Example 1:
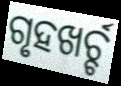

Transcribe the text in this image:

ଗୃହଖର୍ଚ୍ଚ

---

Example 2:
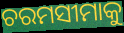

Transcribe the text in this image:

ଚରମସୀମାକୁ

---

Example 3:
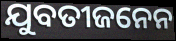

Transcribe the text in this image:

ଯୁବତୀଜନେନ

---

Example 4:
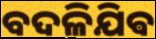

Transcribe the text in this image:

ବଦଳିଯିଵ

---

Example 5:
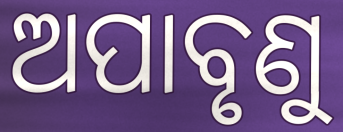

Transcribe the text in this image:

ଅପାବୃଣୁ